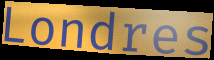
Londres